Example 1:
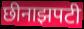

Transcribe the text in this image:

छीनाझपटी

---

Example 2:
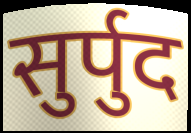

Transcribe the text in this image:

सुर्पुद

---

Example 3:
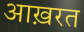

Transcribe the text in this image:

आख़रत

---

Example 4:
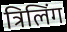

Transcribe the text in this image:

त्रिलिंग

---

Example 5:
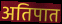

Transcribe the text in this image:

अतिपात